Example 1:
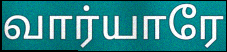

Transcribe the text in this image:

வார்யாரே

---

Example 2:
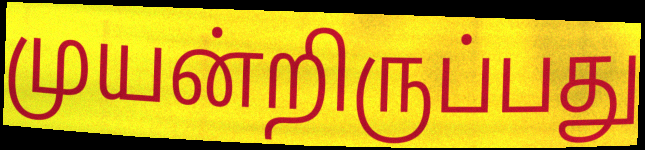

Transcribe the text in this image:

முயன்றிருப்பது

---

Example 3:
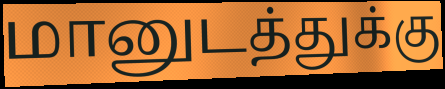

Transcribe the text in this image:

மானுடத்துக்கு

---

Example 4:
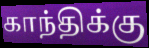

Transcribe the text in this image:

காந்திக்கு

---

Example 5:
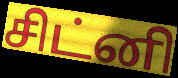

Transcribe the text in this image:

சிட்னி